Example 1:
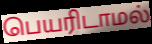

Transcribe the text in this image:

பெயரிடாமல்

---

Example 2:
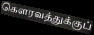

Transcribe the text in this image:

கௌரவத்துக்குப்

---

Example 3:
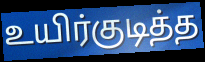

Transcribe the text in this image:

உயிர்குடித்த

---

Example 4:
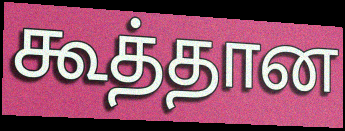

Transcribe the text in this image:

கூத்தான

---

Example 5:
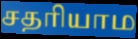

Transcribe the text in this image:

சதரியாம